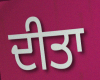
ਦੀਤਾ